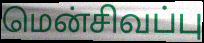
மென்சிவப்பு